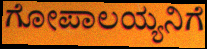
ಗೋಪಾಲಯ್ಯನಿಗೆ